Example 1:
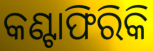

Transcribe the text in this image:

କଣ୍ଟାଫିରିକି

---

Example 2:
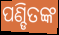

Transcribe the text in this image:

ପଣ୍ଡିତଙ୍କ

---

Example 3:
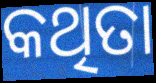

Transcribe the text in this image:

କଥିତା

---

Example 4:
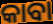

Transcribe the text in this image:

କାବା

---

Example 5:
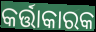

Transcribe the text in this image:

କର୍ତ୍ତାକାରକ